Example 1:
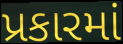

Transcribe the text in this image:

પ્રકારમાં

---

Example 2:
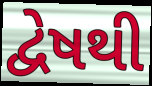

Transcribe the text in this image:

દ્વેષથી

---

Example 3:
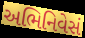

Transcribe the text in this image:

અભિનિવેસં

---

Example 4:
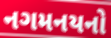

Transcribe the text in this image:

નગમનયનો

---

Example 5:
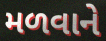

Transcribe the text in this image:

મળવાને